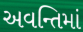
અવન્તિમાં